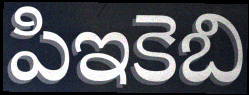
పిఇకెబి